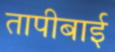
तापीबाई